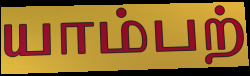
யாம்பற்